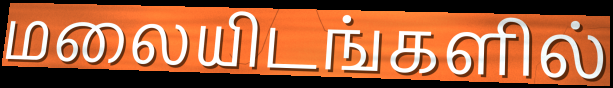
மலையிடங்களில்